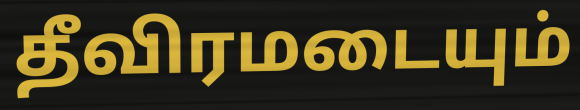
தீவிரமடையும்